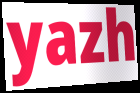
yazh